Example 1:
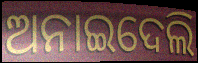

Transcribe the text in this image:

ଅନାଇଦେଲି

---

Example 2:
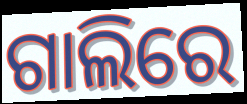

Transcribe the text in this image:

ଗାଲିରେ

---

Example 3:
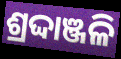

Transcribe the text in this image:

ଶ୍ରଦ୍ଦାଞ୍ଜଳି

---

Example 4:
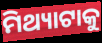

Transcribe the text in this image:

ମିଥ୍ୟାଟାକୁ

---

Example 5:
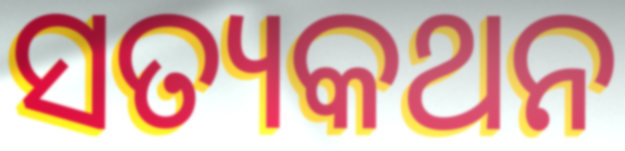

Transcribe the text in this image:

ସତ୍ୟକଥନ